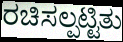
ರಚಿಸಲ್ಪಟ್ಟಿತು